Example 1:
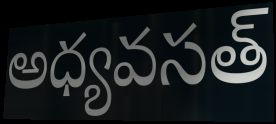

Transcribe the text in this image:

అధ్యవసత్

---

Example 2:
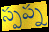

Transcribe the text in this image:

స్పప్న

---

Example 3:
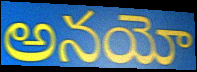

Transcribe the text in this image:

అనయో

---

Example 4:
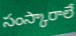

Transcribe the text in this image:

సంస్కారాలే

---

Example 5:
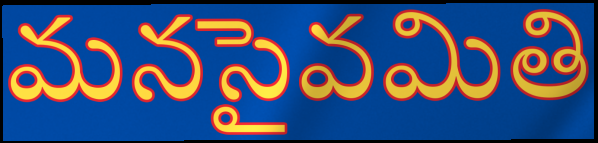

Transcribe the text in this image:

మనసైవమితి